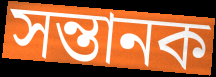
সন্তানক